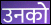
उनको